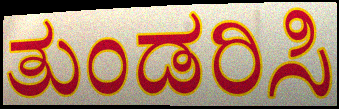
ತುಂಡರಿಸಿ